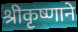
श्रीकृष्णाने